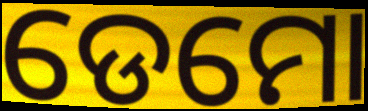
ଡେମୋ